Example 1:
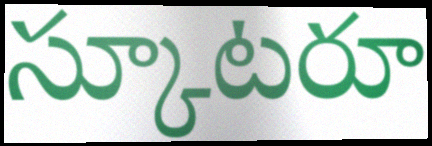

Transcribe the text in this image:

స్కూటరూ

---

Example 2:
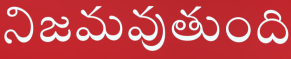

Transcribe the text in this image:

నిజమవుతుంది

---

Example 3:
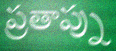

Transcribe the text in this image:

ప్రతాప్ను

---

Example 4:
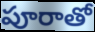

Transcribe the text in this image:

పూరాతో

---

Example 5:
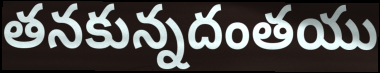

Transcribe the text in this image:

తనకున్నదంతయు